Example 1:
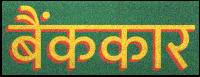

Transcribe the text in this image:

बैंककार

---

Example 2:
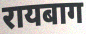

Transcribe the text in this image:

रायबाग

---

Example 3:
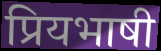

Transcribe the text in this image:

प्रियभाषी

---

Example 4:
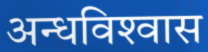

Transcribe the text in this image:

अन्‍धविश्‍वास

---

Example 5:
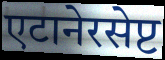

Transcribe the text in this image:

एटानेरसेप्ट